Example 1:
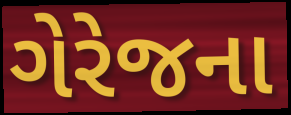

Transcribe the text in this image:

ગેરેજના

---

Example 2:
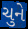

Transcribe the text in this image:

ચુને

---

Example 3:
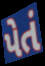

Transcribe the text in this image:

પેતં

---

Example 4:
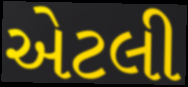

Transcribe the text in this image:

એટલી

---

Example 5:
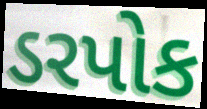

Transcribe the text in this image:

ડરપોક